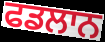
ਫਡਲਾਨ